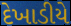
દેખાડીયે